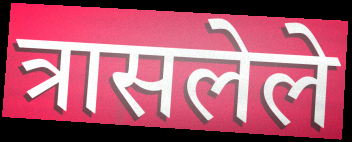
त्रासलेले